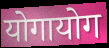
योगायोग